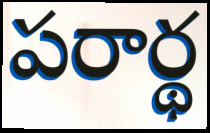
పరార్థ